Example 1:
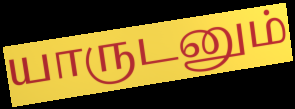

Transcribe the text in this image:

யாருடனும்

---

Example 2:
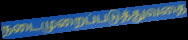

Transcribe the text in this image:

நடைமுறைப்படுத்துவதை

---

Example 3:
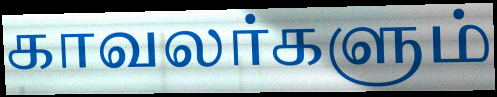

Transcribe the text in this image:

காவலர்களும்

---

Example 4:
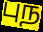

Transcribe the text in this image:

புந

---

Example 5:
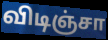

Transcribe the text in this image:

விடிஞ்சா